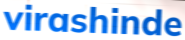
virashinde